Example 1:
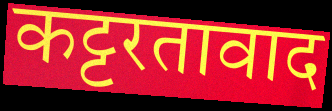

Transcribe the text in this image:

कट्टरतावाद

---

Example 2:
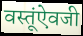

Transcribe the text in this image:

वस्तूंऐवजी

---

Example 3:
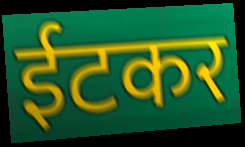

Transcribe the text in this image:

ईटकर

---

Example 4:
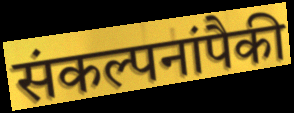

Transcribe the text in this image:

संकल्पनांपैकी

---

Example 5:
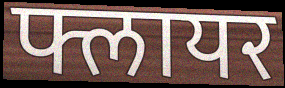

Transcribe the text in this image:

फ्लायर